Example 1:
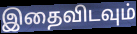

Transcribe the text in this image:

இதைவிடவும்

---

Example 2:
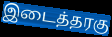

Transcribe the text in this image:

இடைத்தரகு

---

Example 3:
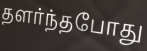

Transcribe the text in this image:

தளர்ந்தபோது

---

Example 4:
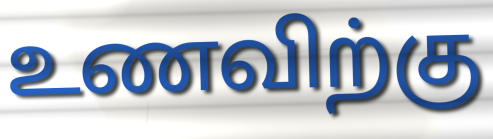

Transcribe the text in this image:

உணவிற்கு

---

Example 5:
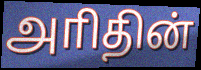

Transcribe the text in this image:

அரிதின்